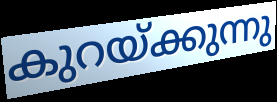
കുറയ്ക്കുന്നു